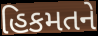
હિકમતને